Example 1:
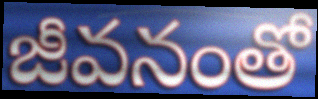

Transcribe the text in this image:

జీవనంతో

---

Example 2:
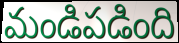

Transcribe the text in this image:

మండిపడింది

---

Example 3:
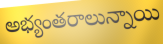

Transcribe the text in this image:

అభ్యంతరాలున్నాయి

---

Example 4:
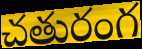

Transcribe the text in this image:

చతురంగ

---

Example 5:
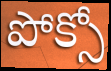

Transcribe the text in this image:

పోక్సో